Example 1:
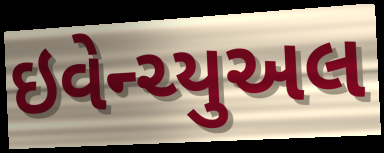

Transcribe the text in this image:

ઇવેન્ચ્યુઅલ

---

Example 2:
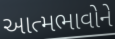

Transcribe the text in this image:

આત્મભાવોને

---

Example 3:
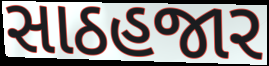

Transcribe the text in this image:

સાઠહજાર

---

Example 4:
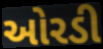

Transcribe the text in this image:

ઓરડી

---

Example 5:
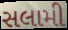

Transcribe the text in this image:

સલામી